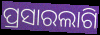
ପ୍ରସାରଲାଗି